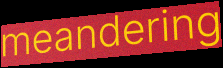
meandering